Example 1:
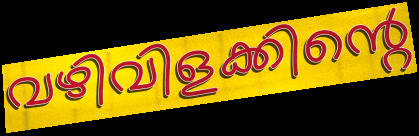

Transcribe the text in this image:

വഴിവിളക്കിന്റെ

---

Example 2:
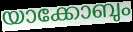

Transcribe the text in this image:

യാക്കോബും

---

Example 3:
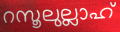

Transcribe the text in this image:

റസൂലുല്ലാഹ്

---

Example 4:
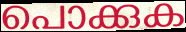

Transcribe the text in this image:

പൊക്കുക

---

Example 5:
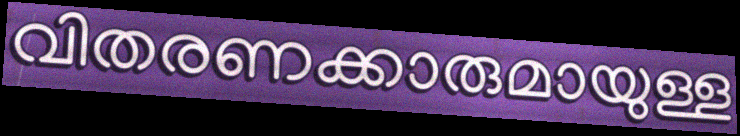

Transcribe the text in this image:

വിതരണക്കാരുമായുള്ള